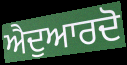
ਐਦੁਆਰਦੋ